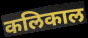
कलिकाल